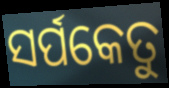
ସର୍ପକେତୁ